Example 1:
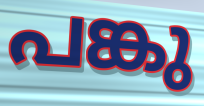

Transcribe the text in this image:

പങ്കു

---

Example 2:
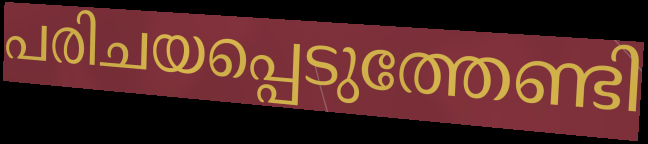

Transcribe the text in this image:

പരിചയപ്പെടുത്തേണ്ടി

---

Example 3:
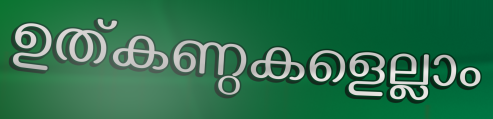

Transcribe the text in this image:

ഉത്കണ്ഠകളെല്ലാം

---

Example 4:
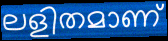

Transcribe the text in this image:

ലളിതമാണ്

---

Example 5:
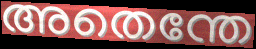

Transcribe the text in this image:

അതെന്തേ